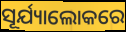
ସୂର୍ଯ୍ୟାଲୋକରେ